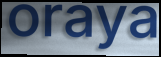
oraya